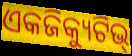
ଏକଜିକ୍ୟୁଟିଭ୍